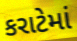
કરાટેમાં